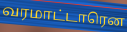
வரமாட்டாரென